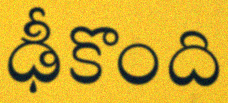
ఢీకొంది